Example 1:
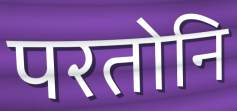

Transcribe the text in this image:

परतोनि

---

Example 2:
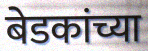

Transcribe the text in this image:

बेडकांच्या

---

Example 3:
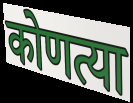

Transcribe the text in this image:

कोणत्या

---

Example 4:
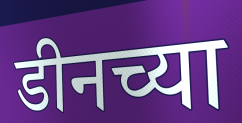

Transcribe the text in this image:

डीनच्या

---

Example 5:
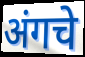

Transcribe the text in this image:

अंगचे